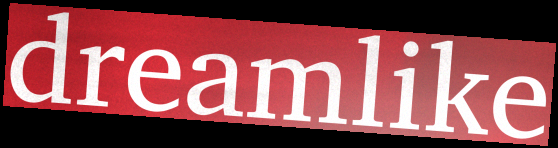
dreamlike